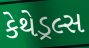
કેથેડ્રલ્સ